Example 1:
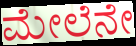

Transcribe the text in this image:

ಮೇಲೆನೇ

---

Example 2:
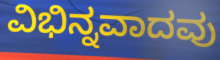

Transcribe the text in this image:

ವಿಭಿನ್ನವಾದವು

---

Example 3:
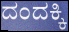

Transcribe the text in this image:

ದಂದಕ್ಕಿ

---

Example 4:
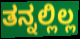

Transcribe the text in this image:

ತನ್ನಲ್ಲಿಲ್ಲ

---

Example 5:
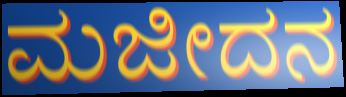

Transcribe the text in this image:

ಮಜೀದನ